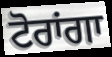
ਟੋਰਾਂਗਾ